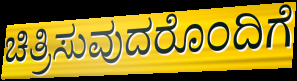
ಚಿತ್ರಿಸುವುದರೊಂದಿಗೆ